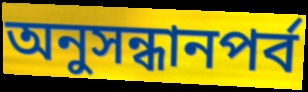
অনুসন্ধানপর্ব